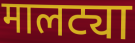
मालट्या